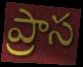
ప్రాస